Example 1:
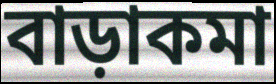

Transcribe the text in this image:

বাড়াকমা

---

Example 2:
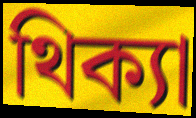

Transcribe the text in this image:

থিক্যা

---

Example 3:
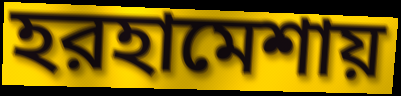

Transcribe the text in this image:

হরহামেশায়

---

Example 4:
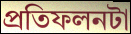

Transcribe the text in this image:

প্রতিফলনটা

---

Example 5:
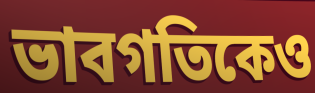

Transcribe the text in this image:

ভাবগতিকেও